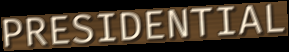
PRESIDENTIAL